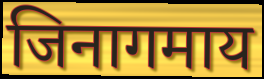
जिनागमाय